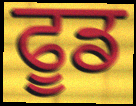
ਫੂਡ